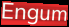
Engum